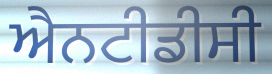
ਐਨਟੀਡੀਸੀ